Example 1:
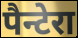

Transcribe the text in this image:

पैन्टेरा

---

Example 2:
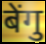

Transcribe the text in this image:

बेंगु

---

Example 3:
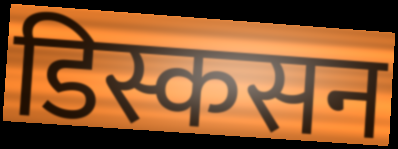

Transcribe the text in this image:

डिस्कसन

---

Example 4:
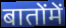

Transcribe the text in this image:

बातोंमें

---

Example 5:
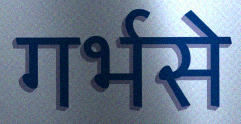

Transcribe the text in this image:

गर्भसे